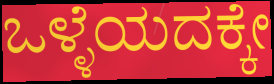
ಒಳ್ಳೆಯದಕ್ಕೇ